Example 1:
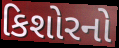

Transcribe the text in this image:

કિશોરનો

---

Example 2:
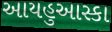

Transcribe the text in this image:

આયહુઆસ્કા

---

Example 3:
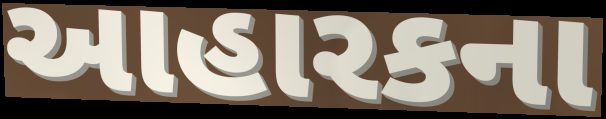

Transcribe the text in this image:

આહારકના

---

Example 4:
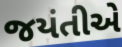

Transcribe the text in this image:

જયંતીએ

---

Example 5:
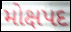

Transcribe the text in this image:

મોક્ષપદ